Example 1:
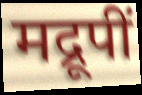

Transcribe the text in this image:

मद्रूपीं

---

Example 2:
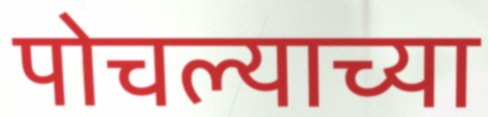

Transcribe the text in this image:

पोचल्याच्या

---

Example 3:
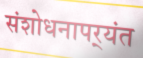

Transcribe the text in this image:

संशोधनापर्यंत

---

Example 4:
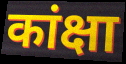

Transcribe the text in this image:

कांक्षा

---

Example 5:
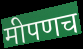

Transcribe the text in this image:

मीपणच